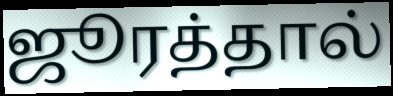
ஜூரத்தால்